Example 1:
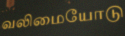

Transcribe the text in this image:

வலிமையோடு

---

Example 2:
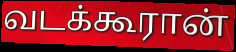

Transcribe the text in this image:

வடக்கூரான்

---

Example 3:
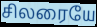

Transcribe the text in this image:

சிலரையே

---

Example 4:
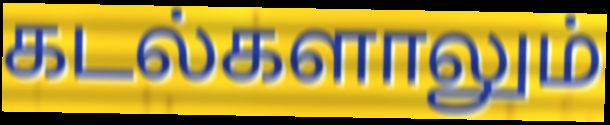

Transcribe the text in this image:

கடல்களாலும்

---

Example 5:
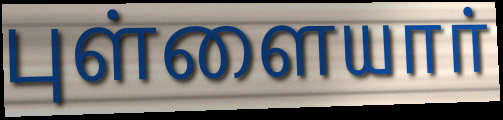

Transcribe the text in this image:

புள்ளையார்